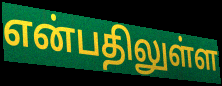
என்பதிலுள்ள